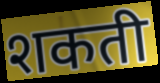
शकती